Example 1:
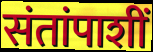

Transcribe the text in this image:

संतांपाशीं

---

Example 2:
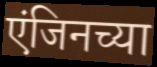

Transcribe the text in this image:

एंजिनच्या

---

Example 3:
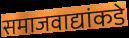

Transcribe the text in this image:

समाजवाद्यांकडे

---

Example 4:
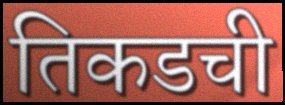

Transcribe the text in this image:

तिकडची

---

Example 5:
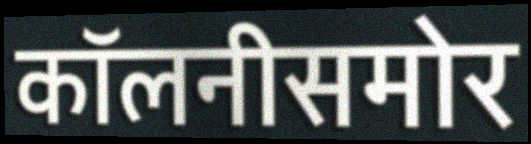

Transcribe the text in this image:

कॉलनीसमोर